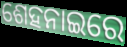
ଶେହନାଇରେ